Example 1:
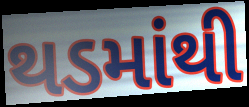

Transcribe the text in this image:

થડમાંથી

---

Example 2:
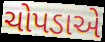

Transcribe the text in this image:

ચોપડાએ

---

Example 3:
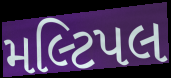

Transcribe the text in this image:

મલ્ટિપલ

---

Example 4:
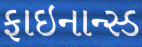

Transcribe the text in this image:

ફાઇનાન્સ્ડ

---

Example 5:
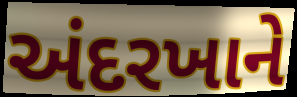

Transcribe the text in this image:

અંદરખાને